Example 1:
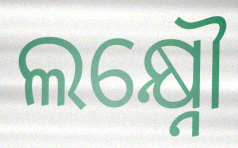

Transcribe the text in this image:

ଲକ୍ଷ୍ନୌ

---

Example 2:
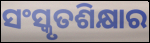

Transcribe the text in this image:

ସଂସ୍କୃତଶିକ୍ଷାର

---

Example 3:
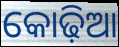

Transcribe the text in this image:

କୋଢ଼ିଆ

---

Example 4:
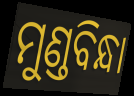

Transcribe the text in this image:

ମୁଣ୍ଡବିନ୍ଧା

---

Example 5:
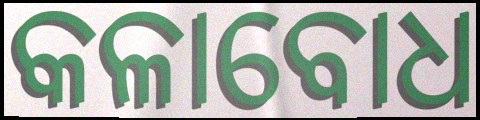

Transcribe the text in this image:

କଳାବୋଧ